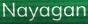
Nayagan